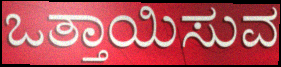
ಒತ್ತಾಯಿಸುವ